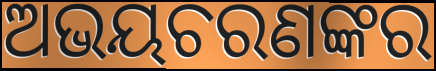
ଅଭୟଚରଣଙ୍କର